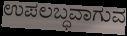
ಉಪಲಬ್ಧವಾಗುವ